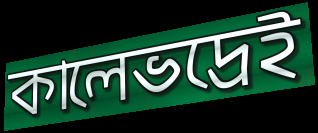
কালেভদ্রেই